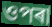
ওপৰা